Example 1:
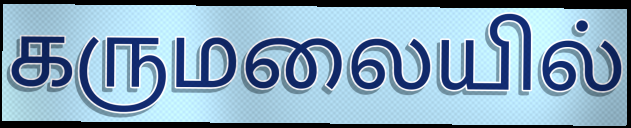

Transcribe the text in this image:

கருமலையில்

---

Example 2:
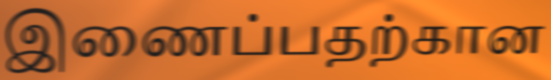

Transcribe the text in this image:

இணைப்பதற்கான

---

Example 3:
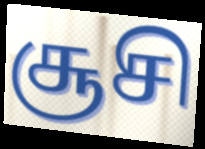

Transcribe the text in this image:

சூசி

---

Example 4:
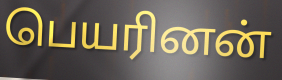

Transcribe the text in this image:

பெயரினன்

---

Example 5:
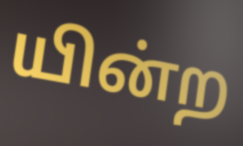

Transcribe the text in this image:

யின்ற